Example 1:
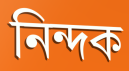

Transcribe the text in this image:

নিন্দক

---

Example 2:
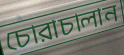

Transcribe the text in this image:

চোরাচালান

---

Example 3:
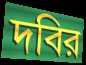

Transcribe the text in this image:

দবির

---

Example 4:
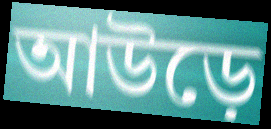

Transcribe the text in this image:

আউড়ে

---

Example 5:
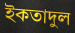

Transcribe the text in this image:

ইকতাদুল